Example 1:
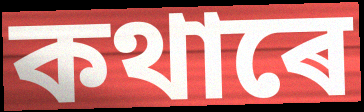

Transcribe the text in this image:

কথাৰে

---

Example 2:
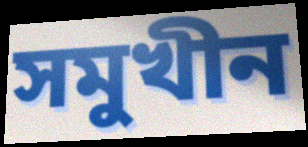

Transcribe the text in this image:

সমুখীন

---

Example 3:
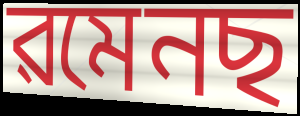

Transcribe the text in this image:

ৱমেনছ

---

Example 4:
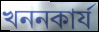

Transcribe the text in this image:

খননকাৰ্য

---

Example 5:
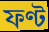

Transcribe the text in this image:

ফণ্ট